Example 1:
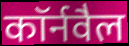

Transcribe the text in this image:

कॉर्नवैल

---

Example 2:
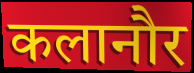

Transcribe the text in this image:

कलानौर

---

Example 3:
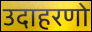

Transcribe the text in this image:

उदाहरणो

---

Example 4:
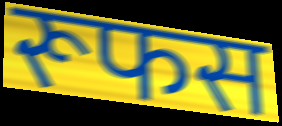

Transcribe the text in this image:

रूफस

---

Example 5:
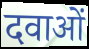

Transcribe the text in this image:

दवाओं